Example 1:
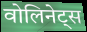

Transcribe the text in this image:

वोलिनेट्स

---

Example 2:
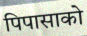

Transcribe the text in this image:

पिपासाको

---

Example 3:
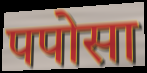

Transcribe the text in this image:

पपोसा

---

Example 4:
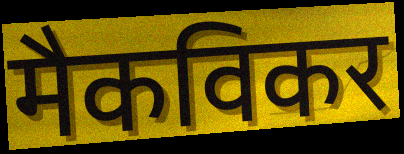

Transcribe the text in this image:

मैकविकर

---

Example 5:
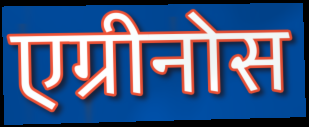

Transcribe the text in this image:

एग्रीनोस